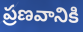
ప్రణవానికి